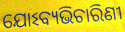
ଯୋଽବ୍ୟଭିଚାରିଣୀ